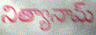
నిత్యానామ్